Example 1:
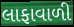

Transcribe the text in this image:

લાફાવાળી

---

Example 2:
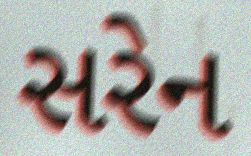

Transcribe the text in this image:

સરેન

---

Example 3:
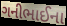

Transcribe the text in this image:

ગનીભાઈના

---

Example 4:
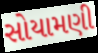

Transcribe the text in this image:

સોયામણી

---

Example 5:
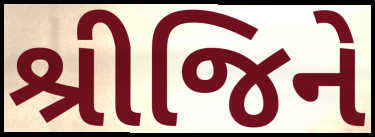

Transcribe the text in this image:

શ્રીજિને